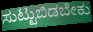
ಸುಟ್ಟುಬಿಡಬೇಕು